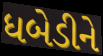
ધબેડીને